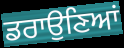
ਡਰਾਉਣਿਆਂ